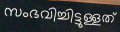
സംഭവിച്ചിട്ടുള്ളത്